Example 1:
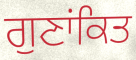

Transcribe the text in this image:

ਗੁਣਾਂਕਿਤ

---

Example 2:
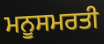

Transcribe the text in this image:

ਮਨੂਸਮਰਤੀ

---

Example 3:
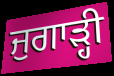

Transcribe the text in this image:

ਜੁਗਾੜ੍ਹੀ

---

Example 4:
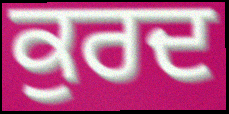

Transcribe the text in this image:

ਕੁਰਦ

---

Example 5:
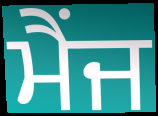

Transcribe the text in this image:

ਮੈਂਜ